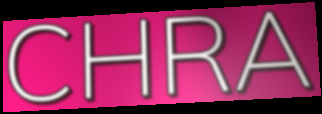
CHRA